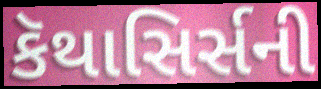
કૅથાસિર્સની